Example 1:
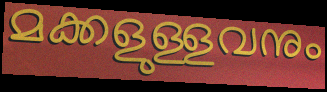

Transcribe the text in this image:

മക്കളുള്ളവനും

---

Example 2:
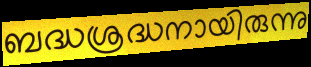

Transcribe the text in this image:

ബദ്ധശ്രദ്ധനായിരുന്നു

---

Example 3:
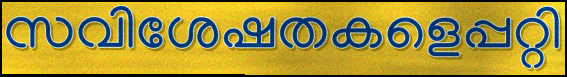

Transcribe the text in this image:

സവിശേഷതകളെപ്പറ്റി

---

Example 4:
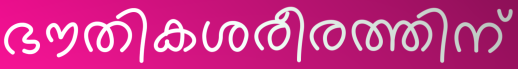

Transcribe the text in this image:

ഭൗതികശരീരത്തിന്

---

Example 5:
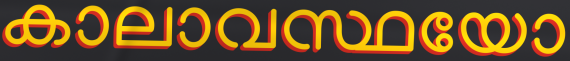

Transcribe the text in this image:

കാലാവസ്ഥയോ